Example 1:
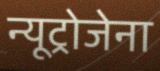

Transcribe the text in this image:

न्यूट्रोजेना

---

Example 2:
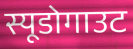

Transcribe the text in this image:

स्यूडोगाउट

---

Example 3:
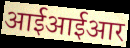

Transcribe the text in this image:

आईआईआर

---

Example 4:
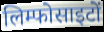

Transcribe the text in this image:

लिम्फोसाइटों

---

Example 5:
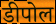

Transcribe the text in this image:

डीपोल